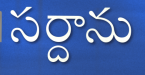
సర్దాను